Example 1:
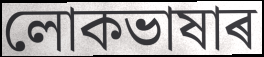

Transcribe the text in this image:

লোকভাষাৰ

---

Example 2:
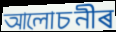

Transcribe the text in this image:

আলোচনীৰ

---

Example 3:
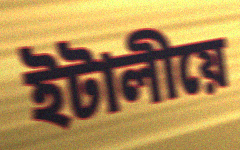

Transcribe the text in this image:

ইটালীয়ে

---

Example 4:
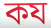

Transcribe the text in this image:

কয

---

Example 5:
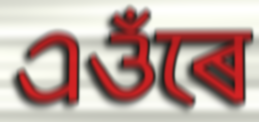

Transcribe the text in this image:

এওঁৰে